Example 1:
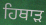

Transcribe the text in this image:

ਹਿਥਾੜ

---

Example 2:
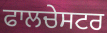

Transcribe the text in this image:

ਫਾਲਚੇਸਟਰ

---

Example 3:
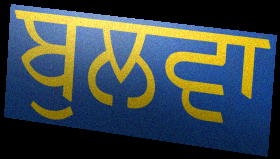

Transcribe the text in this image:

ਬੁਲਵਾ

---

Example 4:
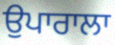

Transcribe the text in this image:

ਉਪਾਰਾਲਾ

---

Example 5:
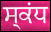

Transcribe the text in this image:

ਸ੍ਕਂਧ